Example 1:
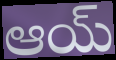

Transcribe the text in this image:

ఆయ్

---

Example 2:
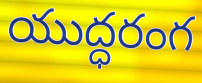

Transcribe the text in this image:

యుద్ధరంగ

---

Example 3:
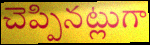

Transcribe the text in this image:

చెప్పినట్లుగా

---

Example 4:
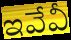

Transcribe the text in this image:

ఇవేవీ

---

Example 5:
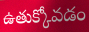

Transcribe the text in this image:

ఉతుక్కోవడం